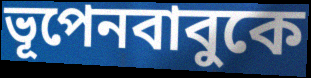
ভূপেনবাবুকে